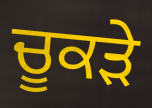
ਚੂਕੜੇ